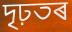
দৃঢ়তৰ